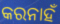
କରନାହଁ